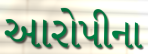
આરોપીના